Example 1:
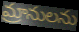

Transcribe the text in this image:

మ్రానులను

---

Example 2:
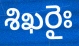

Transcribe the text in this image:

శిఖరైః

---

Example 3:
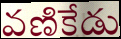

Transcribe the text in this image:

వణికేడు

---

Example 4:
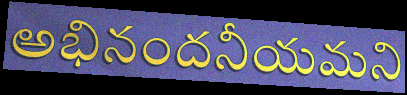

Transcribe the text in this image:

అభినందనీయమని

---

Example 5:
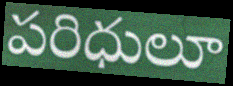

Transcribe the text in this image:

పరిధులూ